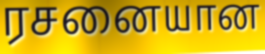
ரசனையான